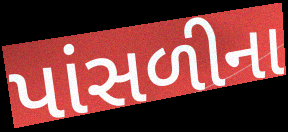
પાંસળીના